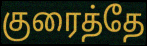
குரைத்தே